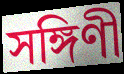
সঙ্গিণী